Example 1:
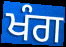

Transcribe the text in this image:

ਖੰਗ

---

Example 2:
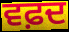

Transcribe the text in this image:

ਵਫ਼ਦ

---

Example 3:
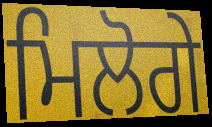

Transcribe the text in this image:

ਮਿਲੋਗੇ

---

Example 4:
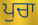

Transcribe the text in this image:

ਪੁਚਾ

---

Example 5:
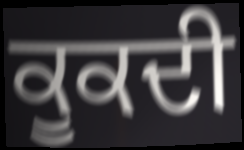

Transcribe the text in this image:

ਕੂਕਦੀ